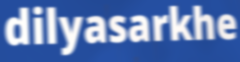
dilyasarkhe